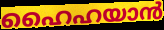
ഹൈഹയാൻ